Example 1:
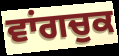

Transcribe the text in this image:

ਵਾਂਗਚੁਕ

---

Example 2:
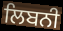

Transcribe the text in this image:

ਲਿਬਨੀ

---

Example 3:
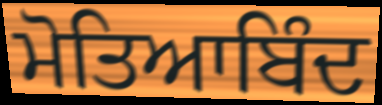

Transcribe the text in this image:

ਮੋਤਿਆਬਿੰਦ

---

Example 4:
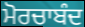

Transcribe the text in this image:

ਮੋਰਚਾਬੰਦ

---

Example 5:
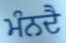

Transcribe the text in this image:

ਮੰਨਦੈ